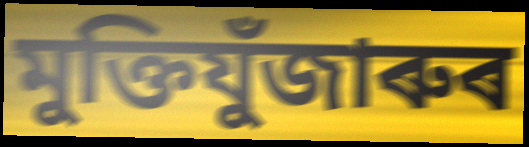
মুক্তিযুঁজাৰুৰ